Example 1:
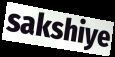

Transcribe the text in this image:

sakshiye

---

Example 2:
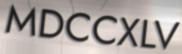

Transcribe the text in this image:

MDCCXLV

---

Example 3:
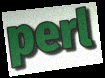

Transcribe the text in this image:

perl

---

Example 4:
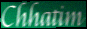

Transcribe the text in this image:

Chhatim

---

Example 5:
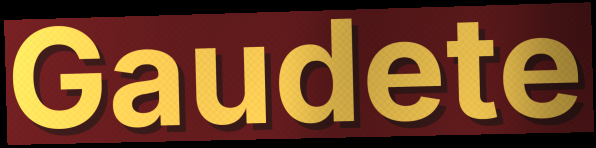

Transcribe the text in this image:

Gaudete